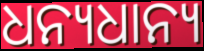
ଧନ୍ୟଧାନ୍ୟ